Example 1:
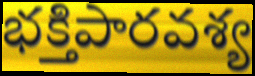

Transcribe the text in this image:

భక్తిపారవశ్య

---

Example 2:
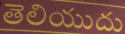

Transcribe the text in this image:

తెలియుదు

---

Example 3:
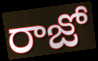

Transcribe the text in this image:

రాజో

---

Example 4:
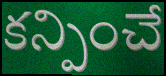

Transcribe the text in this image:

కన్పించే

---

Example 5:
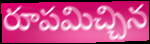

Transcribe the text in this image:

రూపమిచ్చిన